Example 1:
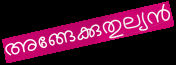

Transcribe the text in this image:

അങ്ങേക്കുതുല്യൻ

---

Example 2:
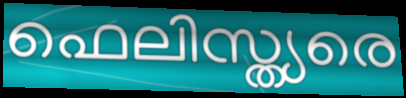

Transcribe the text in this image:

ഫെലിസ്ത്യരെ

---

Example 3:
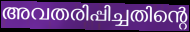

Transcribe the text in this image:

അവതരിപ്പിച്ചതിന്റെ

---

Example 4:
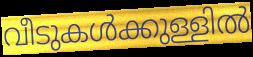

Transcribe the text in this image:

വീടുകൾക്കുള്ളിൽ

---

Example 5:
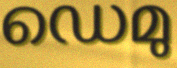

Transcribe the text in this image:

ഡെമു